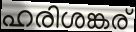
ഹരിശങ്കര്